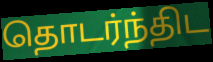
தொடர்ந்திட